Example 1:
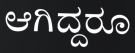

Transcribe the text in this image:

ಆಗಿದ್ದರೂ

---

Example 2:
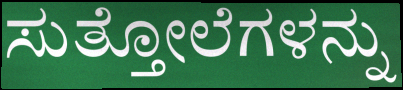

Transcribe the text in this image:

ಸುತ್ತೋಲೆಗಳನ್ನು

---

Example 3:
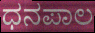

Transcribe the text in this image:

ಧನಪಾಲ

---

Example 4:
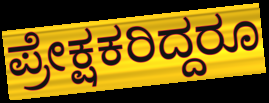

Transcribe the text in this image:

ಪ್ರೇಕ್ಷಕರಿದ್ದರೂ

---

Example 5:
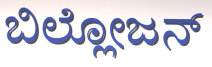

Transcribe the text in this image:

ಬಿಲ್ಲೋಜನ್